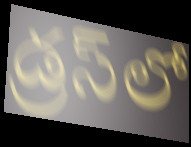
డ్రస్‌లో